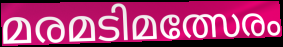
മരമടിമത്സേരം